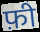
फ़ी